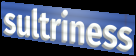
sultriness